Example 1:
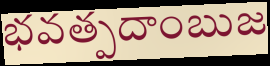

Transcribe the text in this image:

భవత్పదాంబుజ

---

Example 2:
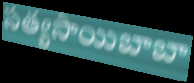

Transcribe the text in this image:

సత్యసాయిబాబా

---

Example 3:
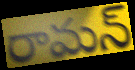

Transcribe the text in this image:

రామన్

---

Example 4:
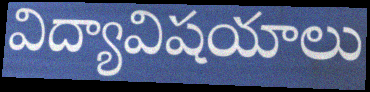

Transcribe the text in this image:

విద్యావిషయాలు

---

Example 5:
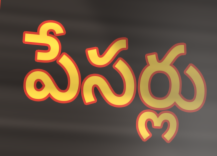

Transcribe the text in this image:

పేసర్లు